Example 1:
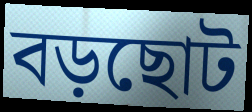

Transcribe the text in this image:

বড়ছোট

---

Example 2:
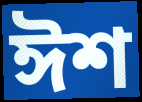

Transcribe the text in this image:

ঈশ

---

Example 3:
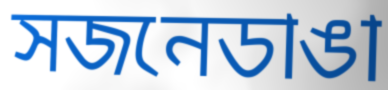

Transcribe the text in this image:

সজনেডাঙা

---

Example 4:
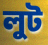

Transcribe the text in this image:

লুট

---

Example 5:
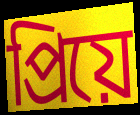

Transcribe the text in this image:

প্রিয়ে